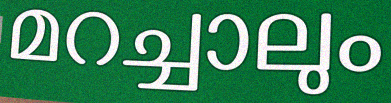
മറച്ചാലും